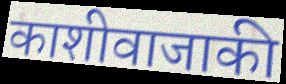
काशीवाजाकी